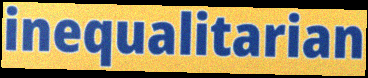
inequalitarian